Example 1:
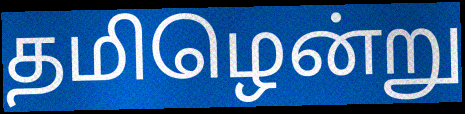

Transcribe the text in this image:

தமிழென்று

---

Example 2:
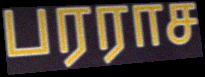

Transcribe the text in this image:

பரராச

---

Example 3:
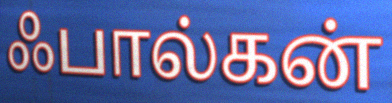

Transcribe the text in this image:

ஃபால்கன்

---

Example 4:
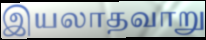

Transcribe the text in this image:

இயலாதவாறு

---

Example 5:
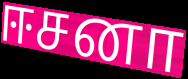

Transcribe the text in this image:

ஈசனா